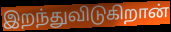
இறந்துவிடுகிறான்